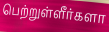
பெற்றுள்ளீர்களா